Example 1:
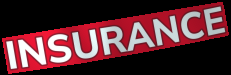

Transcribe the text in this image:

INSURANCE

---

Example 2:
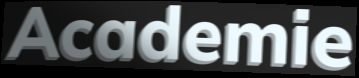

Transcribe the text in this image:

Academie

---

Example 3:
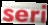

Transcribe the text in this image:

seri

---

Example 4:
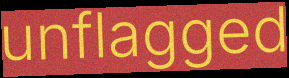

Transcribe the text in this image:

unflagged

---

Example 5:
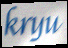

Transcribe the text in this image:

kryu